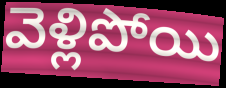
వెళ్లిపోయి